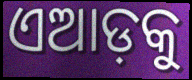
ଏଆଡ଼କୁ